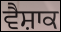
ਵੈਸ਼ਾਕ